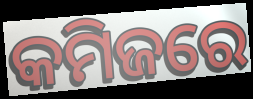
କମିଜରେ